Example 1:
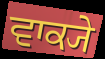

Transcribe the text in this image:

ਵਾਕ੍ਯੇ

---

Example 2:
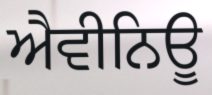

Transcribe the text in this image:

ਐਵੀਨਿਊ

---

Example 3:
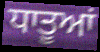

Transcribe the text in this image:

ਧਾਤੂਆਂ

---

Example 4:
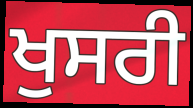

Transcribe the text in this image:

ਖੁਸਰੀ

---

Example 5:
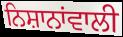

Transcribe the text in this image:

ਨਿਸ਼ਾਨਾਂਵਾਲੀ